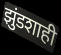
झुंडशाही